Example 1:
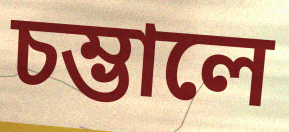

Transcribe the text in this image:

চম্ভালে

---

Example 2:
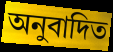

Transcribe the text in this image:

অনুবাদিত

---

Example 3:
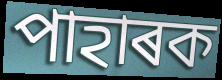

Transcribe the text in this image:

পাহাৰক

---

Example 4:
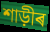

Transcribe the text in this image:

শাড়ীৰ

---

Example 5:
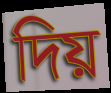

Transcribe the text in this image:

দিয়